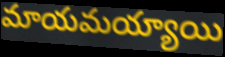
మాయమయ్యాయి